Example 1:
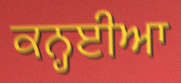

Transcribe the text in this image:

ਕਨ੍ਹਈਆ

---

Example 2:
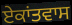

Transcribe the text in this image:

ਏਕਾਂਤਵਾਸ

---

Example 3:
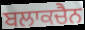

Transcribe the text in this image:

ਬਲਾਕਚੈਨ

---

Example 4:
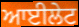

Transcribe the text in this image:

ਆਈਲੇਟ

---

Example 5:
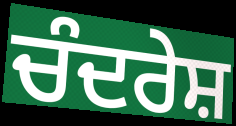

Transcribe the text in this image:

ਚੰਦਰੇਸ਼